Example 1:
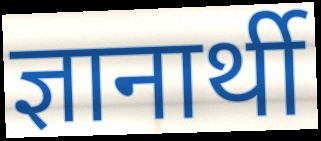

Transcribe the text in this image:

ज्ञानार्थी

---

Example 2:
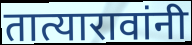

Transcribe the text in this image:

तात्यारावांनी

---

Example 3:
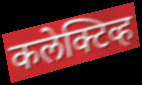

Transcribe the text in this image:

कलेक्टिव्ह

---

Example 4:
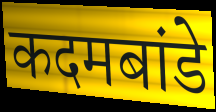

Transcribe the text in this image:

कदमबांडे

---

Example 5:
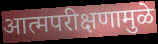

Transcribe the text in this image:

आत्मपरीक्षणामुळे